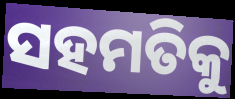
ସହମତିକୁ